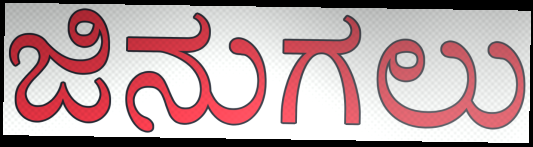
ಜಿನುಗಲು